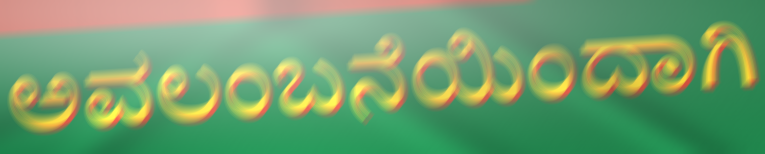
ಅವಲಂಬನೆಯಿಂದಾಗಿ